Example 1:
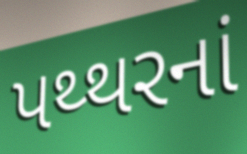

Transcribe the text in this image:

પથ્થરનાં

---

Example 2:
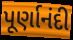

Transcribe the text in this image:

પૂર્ણાનંદી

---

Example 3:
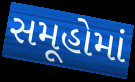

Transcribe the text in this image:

સમૂહોમાં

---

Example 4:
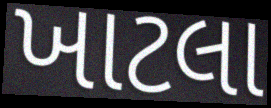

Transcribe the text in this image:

ખાટલા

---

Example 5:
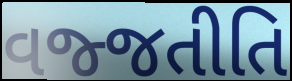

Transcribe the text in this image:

વજ્જતીતિ